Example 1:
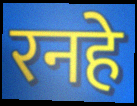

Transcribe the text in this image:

रनहे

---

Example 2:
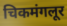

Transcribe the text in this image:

चिकमंगलूर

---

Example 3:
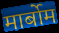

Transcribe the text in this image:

मार्बोम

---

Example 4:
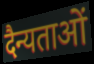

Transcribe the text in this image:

दैन्यताओं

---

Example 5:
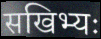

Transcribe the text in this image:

सखिभ्यः